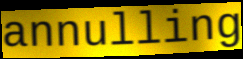
annulling